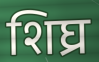
शिघ्र